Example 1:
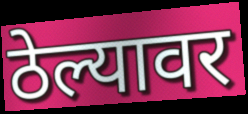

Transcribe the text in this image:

ठेल्यावर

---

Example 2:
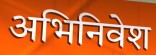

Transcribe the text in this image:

अभिनिवेश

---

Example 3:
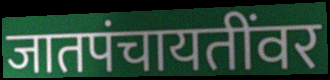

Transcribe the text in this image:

जातपंचायतींवर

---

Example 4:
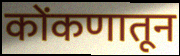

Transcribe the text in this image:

कोंकणातून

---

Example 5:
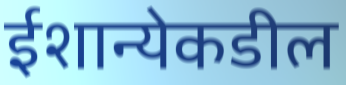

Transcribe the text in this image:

ईशान्येकडील